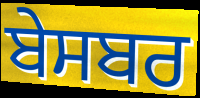
ਬੇਸਬਰ